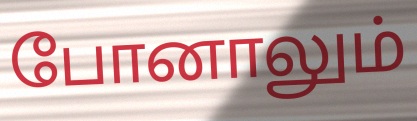
போனாலும்